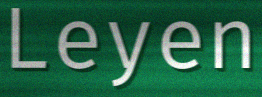
Leyen